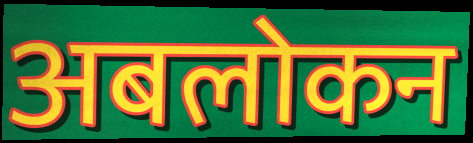
अबलोकन